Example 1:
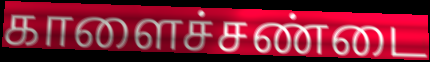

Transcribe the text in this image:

காளைச்சண்டை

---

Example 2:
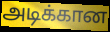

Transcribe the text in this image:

அடிக்கான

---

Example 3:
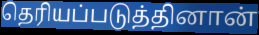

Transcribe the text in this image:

தெரியப்படுத்தினான்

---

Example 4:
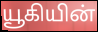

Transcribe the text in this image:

யூகியின்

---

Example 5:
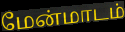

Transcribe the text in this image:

மேன்மாடம்